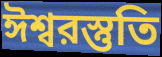
ঈশ্বরস্তুতি